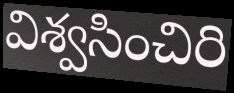
విశ్వసించిరి